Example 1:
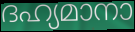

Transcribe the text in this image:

ദഹ്യമാനാ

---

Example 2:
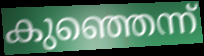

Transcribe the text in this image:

കുഞ്ഞെന്ന്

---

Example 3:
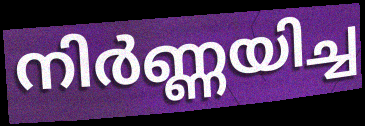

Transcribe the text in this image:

നിർണ്ണയിച്ച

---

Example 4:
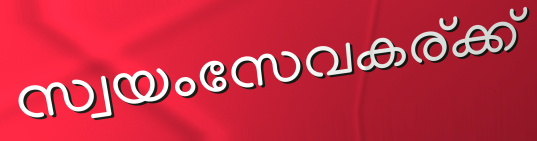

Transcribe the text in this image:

സ്വയംസേവകര്ക്ക്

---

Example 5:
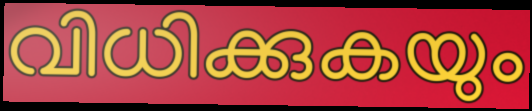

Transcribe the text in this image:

വിധിക്കുകയും